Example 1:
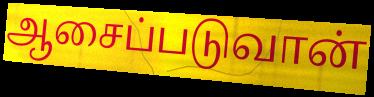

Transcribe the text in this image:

ஆசைப்படுவான்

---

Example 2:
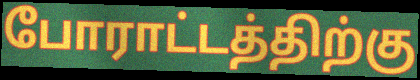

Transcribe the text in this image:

போராட்டத்திற்கு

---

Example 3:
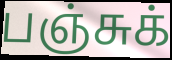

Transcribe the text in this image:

பஞ்சுக்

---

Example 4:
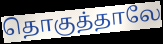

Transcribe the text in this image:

தொகுத்தாலே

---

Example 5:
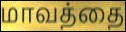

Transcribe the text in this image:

மாவத்தை